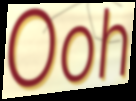
Ooh